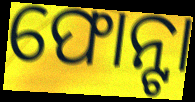
ଫୋନ୍ଟା